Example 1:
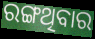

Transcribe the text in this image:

ରଙ୍ଗଥିବାର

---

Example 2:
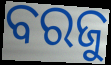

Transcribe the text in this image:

ବରଜୁ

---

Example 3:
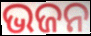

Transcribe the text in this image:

ଭଜନ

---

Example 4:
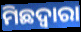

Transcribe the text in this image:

ମିଛଦ୍ଵାରା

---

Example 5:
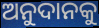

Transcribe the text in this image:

ଅନୁଦାନକୁ